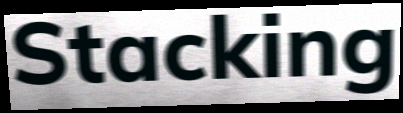
Stacking